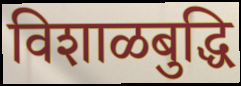
विशाळबुद्धि